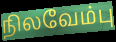
நிலவேம்பு